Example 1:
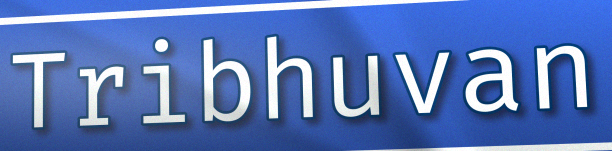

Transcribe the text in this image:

Tribhuvan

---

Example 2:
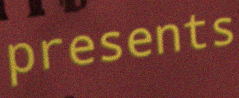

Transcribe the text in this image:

presents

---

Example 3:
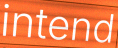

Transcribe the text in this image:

intend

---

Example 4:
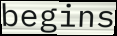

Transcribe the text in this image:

begins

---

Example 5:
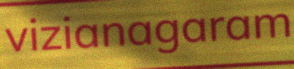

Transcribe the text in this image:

vizianagaram